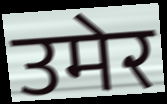
उमेर